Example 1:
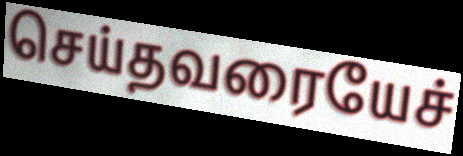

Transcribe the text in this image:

செய்தவரையேச்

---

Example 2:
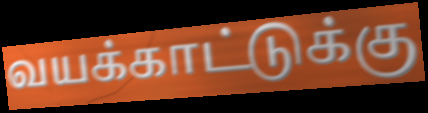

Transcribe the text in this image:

வயக்காட்டுக்கு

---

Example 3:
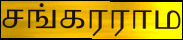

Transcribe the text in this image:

சங்கரராம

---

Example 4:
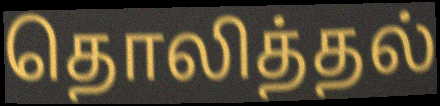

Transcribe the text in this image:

தொலித்தல்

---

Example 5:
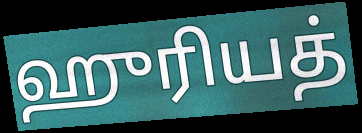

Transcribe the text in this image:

ஹுரியத்